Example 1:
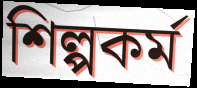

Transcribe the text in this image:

শিল্পকর্ম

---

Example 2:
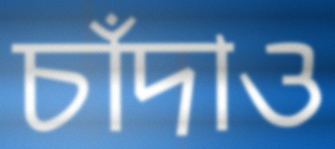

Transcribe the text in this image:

চাঁদাও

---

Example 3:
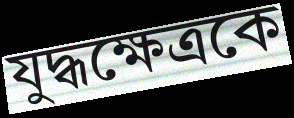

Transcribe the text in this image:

যুদ্ধক্ষেত্রকে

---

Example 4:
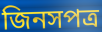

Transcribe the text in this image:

জিনসপত্র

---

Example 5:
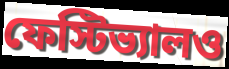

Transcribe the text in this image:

ফেস্টিভ্যালও